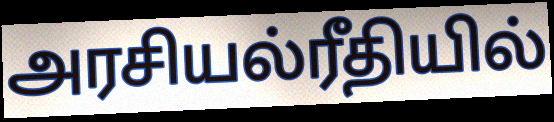
அரசியல்ரீதியில்